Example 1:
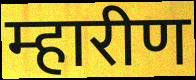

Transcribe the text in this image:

म्हारीण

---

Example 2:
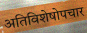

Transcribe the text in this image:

अतिविशेषोपचार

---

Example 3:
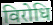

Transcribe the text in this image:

विरोधि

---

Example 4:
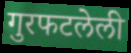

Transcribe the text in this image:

गुरफटलेली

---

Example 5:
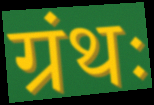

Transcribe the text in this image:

ग्रंथः